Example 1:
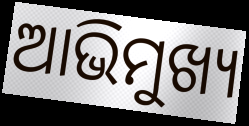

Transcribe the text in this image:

ଆଭିମୁଖ୍ୟ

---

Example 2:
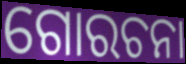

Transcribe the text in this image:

ଗୋରଚନା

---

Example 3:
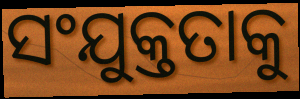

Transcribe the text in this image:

ସଂଯୁକ୍ତତାକୁ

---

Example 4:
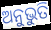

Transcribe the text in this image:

ଅନୁଭୁତି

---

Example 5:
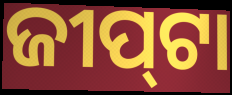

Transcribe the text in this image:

ଜୀପ୍‍ଟା